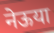
नेऊया